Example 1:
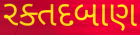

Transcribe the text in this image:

રક્તદબાણ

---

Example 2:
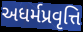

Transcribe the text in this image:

અધર્મપ્રવૃત્તિ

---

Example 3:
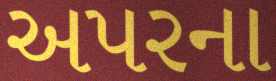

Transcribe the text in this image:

અપરના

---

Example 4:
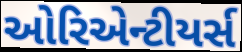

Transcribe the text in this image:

ઓરિએન્ટીયર્સ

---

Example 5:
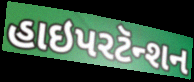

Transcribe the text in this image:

હાઇપરટૅન્શન